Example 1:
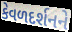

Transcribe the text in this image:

કેવળદર્શનને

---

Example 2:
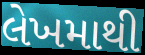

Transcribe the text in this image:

લેખમાથી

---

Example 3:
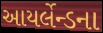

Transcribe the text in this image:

આયર્લેન્ડના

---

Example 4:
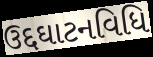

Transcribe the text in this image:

ઉદ્દઘાટનવિધિ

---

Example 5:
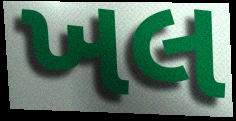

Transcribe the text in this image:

ખલ